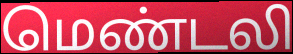
மெண்டலி